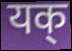
यक्